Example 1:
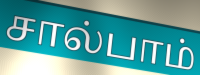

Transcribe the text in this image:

சால்பாம்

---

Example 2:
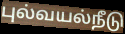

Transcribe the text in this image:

புல்வயல்நீடு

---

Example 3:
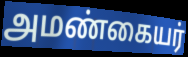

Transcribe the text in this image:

அமண்கையர்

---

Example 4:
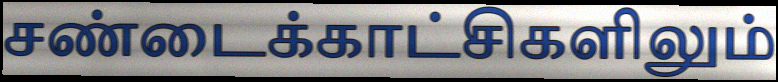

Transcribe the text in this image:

சண்டைக்காட்சிகளிலும்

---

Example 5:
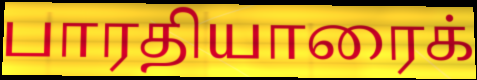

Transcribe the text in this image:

பாரதியாரைக்